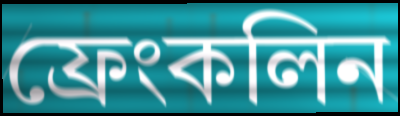
ফ্ৰেংকলিন